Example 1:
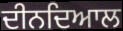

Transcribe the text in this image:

ਦੀਨਦਿਆਲ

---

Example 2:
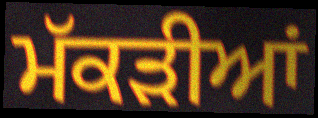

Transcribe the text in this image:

ਮੱਕੜੀਆਂ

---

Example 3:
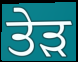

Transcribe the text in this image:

ਤੇੜ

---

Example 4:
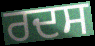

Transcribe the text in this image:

ਰਦਸ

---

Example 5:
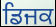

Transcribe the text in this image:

ਡਿਜਕ